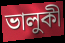
ভালুকী